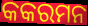
କକରମନ